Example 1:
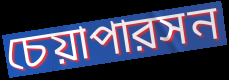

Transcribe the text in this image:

চেয়াপারসন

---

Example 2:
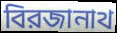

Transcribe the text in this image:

বিরজানাথ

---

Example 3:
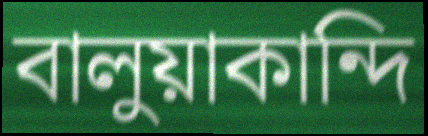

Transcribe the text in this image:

বালুয়াকান্দি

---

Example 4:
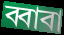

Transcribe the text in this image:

ব্বাবা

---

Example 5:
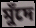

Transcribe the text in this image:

মুঁদে